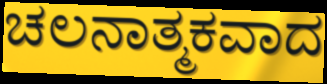
ಚಲನಾತ್ಮಕವಾದ